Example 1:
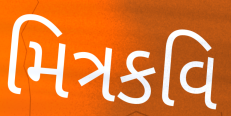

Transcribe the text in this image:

મિત્રકવિ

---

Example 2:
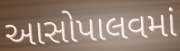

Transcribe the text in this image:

આસોપાલવમાં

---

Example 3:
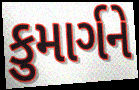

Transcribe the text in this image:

કુમાર્ગને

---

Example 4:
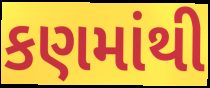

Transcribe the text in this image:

કણમાંથી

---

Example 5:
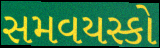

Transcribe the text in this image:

સમવયસ્કો